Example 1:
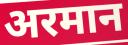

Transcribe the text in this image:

अरमान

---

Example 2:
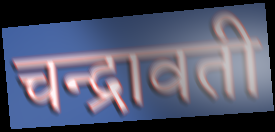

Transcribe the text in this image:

चन्द्रावती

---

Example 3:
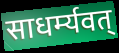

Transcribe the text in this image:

साधर्म्यवत्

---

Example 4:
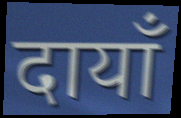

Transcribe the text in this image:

दायाँ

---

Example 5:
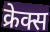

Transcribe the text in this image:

क्रेक्स